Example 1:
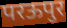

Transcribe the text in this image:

परऊपुर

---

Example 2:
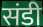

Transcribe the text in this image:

संडी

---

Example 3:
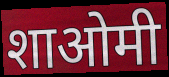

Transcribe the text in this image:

शाओमी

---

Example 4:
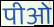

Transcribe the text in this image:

पीओ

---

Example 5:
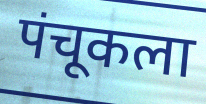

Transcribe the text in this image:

पंचूकला